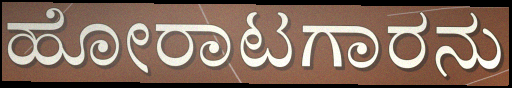
ಹೋರಾಟಗಾರನು